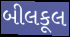
બીલકૂલ